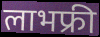
लाभफ्री